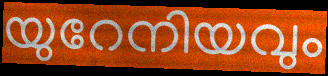
യുറേനിയവും